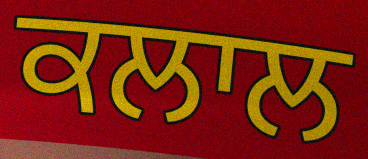
ਕਲਾਲ